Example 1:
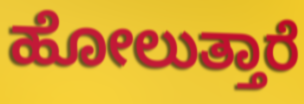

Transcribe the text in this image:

ಹೋಲುತ್ತಾರೆ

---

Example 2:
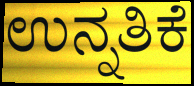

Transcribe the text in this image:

ಉನ್ನತಿಕೆ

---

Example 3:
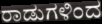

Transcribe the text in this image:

ರಾಡುಗಳಿಂದ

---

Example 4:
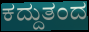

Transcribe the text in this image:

ಕದ್ದುತಂದ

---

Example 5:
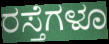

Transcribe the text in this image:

ರಸ್ತೆಗಳೂ